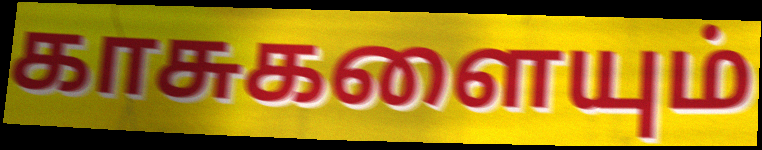
காசுகளையும்